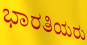
ಭಾರತಿಯರು